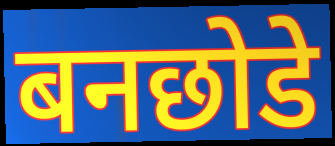
बनछोडे